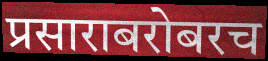
प्रसाराबरोबरच